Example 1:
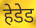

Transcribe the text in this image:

हेडेड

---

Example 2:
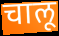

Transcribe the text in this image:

चालू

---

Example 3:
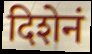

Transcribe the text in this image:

दिशेनं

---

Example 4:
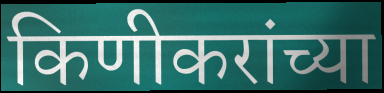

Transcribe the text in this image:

किणीकरांच्या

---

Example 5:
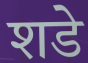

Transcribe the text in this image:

शडे